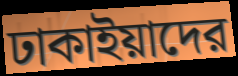
ঢাকাইয়াদের